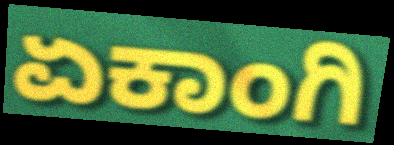
ಏಕಾಂಗಿ